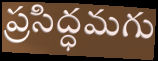
ప్రసిద్ధమగు